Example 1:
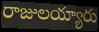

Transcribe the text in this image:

రాజులయ్యారు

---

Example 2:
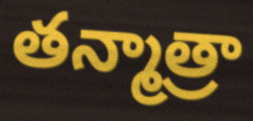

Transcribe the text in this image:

తన్మాత్రా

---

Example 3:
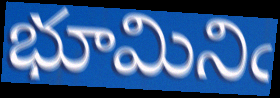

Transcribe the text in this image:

భూమినిఁ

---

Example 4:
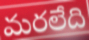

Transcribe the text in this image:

మరలేది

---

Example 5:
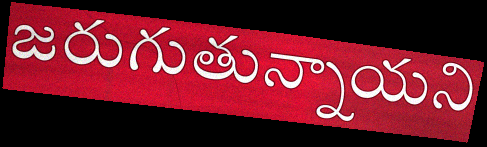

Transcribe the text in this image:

జరుగుతున్నాయని